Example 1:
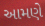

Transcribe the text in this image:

આમણે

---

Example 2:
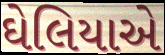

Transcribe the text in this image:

ઘેલિયાએ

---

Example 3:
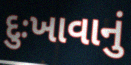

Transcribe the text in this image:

દુઃખાવાનું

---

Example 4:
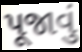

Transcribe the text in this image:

પૂજાવું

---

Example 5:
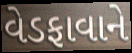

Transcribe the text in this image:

વેડફાવાને